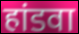
हांडवा